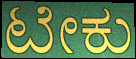
ಟೇಕು